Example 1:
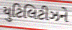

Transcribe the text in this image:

યુટિલિટીઝને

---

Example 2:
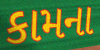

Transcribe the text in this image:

કામના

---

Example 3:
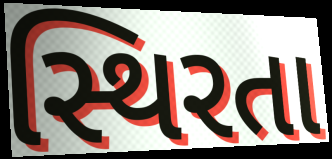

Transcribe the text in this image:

સ્થિરતા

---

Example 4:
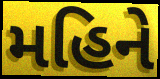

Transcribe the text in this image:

મહિને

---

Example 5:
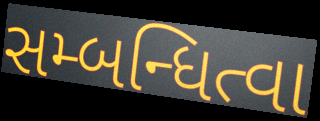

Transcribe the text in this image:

સમ્બન્ધિત્વા